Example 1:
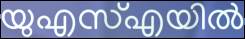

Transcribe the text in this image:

യുഎസ്എയിൽ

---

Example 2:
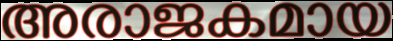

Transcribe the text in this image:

അരാജകമായ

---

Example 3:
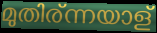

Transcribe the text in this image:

മുതിര്ന്നയാള്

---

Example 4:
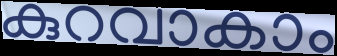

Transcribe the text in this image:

കുറവാകാം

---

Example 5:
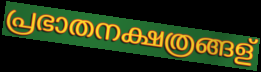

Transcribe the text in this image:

പ്രഭാതനക്ഷത്രങ്ങള്